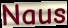
Naus